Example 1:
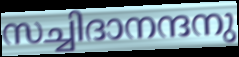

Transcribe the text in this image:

സച്ചിദാനന്ദനു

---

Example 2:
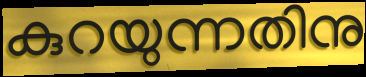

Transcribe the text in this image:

കുറയുന്നതിനു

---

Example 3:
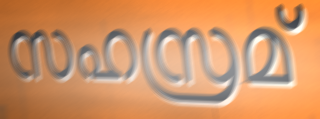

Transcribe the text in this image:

സഹസ്രമ്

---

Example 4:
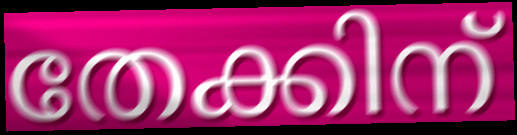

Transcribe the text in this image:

തേക്കിന്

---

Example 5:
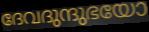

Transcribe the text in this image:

ദേവദുന്ദുഭയോ